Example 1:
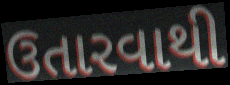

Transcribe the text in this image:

ઉતારવાથી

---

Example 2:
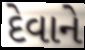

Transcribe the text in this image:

દેવાને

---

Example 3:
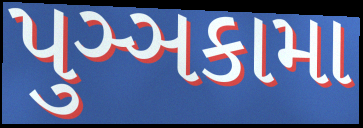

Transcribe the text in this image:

પુઞ્ઞકામા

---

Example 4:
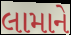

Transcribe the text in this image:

લામાને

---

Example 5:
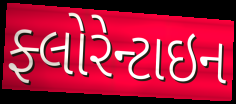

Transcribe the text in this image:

ફ્લોરેન્ટાઇન